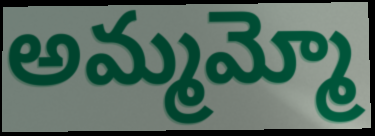
అమ్మమ్మో